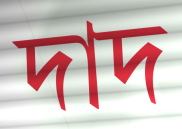
দাদ